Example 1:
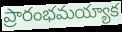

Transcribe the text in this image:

ప్రారంభమయ్యాక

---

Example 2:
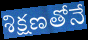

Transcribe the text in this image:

శిక్షణతోనే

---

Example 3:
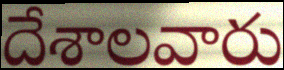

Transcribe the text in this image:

దేశాలవారు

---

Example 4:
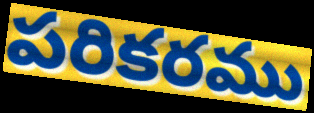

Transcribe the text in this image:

పరికరము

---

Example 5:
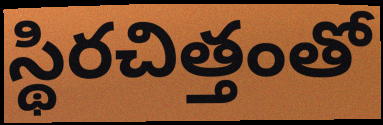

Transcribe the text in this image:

స్థిరచిత్తంతో